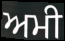
ਅਮੀ